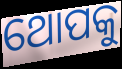
ଥୋପକୁ